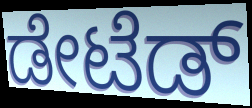
ಡೇಟೆಡ್